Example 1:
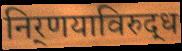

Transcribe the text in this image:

निर्णयाविरुद्ध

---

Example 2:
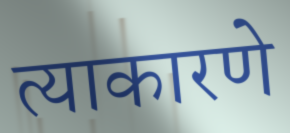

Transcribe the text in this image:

त्याकारणे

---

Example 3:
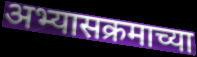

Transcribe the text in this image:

अभ्यासक्रमाच्या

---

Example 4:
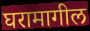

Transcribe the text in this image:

घरामागील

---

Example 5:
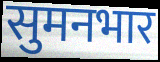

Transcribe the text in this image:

सुमनभार